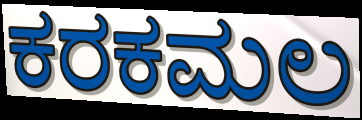
ಕರಕಮಲ